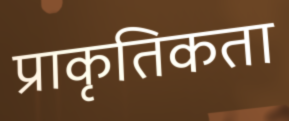
प्राकृतिकता